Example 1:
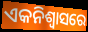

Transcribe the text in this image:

ଏକନିଶ୍ୱାସରେ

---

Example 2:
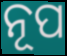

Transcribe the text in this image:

ନୂପ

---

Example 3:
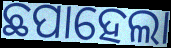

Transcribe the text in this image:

ଛପାହେଲା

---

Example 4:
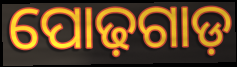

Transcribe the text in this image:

ପୋଢ଼ଗାଡ଼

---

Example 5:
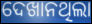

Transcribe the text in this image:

ଦେଖାନଥିଲା